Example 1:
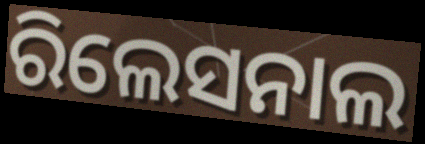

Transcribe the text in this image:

ରିଲେସନାଲ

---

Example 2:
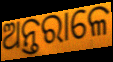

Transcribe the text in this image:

ଅନ୍ତରାଳେ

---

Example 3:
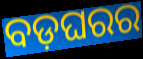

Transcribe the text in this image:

ବଡ଼ଘରର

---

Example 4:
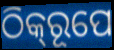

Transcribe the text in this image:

ଠିକ୍‍ରୂପେ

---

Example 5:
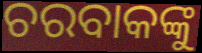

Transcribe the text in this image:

ଚରବାକଙ୍କୁ